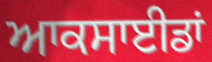
ਆਕਸਾਈਡਾਂ